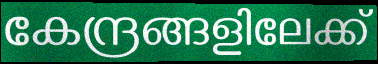
കേന്ദ്രങ്ങളിലേക്ക്